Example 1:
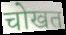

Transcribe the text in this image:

चोखत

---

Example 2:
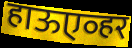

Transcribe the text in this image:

हाऊएव्हर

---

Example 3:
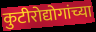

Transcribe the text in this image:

कुटीरोद्योगांच्या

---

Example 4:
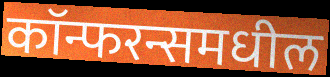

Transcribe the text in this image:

कॉन्फरन्समधील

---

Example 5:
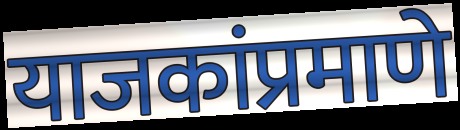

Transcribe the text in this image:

याजकांप्रमाणे